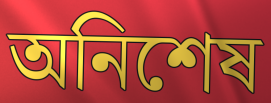
অনিশেষ